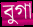
বুগা